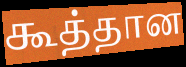
கூத்தான